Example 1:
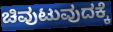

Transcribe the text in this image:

ಚಿವುಟುವುದಕ್ಕೆ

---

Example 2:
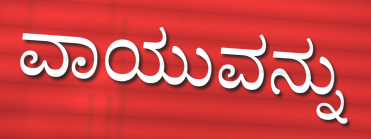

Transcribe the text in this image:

ವಾಯುವನ್ನು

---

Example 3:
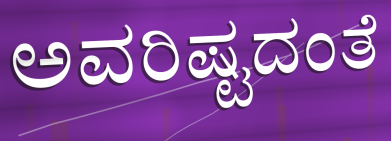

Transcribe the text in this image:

ಅವರಿಷ್ಟದಂತೆ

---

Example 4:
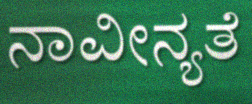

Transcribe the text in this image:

ನಾವೀನ್ಯತೆ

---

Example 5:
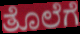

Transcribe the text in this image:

ತೊಲೆಗೆ